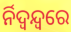
ର୍ନିଦ୍ୱନ୍ଦ୍ୱରେ